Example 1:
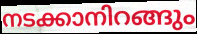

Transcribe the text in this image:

നടക്കാനിറങ്ങും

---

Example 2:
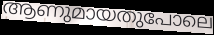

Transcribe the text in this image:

ആണുമായതുപോലെ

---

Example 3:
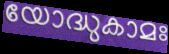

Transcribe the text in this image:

യോദ്ധുകാമഃ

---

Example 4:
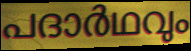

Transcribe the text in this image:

പദാർഥവും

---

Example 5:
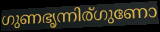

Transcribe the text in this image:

ഗുണഭൃന്നിര്ഗുണോ